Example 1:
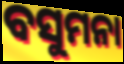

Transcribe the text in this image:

ବସୁମନା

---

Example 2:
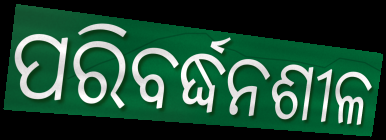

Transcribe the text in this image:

ପରିବର୍ଦ୍ଧନଶୀଳ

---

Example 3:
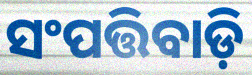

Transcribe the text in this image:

ସଂପତ୍ତିବାଡ଼ି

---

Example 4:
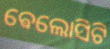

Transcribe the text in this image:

ଵେଲୋସିଟି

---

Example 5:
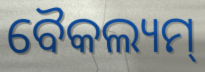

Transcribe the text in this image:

ବୈକଲ୍ୟମ୍